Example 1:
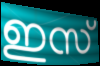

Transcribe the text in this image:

ഇസ്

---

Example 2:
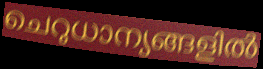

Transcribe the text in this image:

ചെറുധാന്യങ്ങളിൽ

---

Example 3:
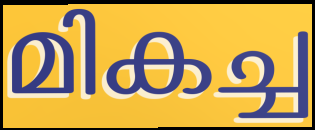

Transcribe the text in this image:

മികച്ച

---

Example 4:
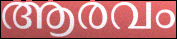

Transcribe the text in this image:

ആരവം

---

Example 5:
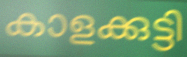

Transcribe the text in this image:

കാളക്കുട്ടി